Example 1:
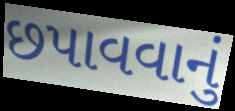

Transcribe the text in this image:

છપાવવાનું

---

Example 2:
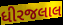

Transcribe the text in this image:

ધીરજલાલ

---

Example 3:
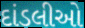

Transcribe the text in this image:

દાંડલીઓ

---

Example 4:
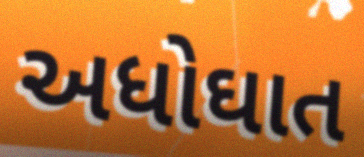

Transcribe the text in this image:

અધોઘાત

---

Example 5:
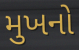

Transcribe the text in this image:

મુખનો